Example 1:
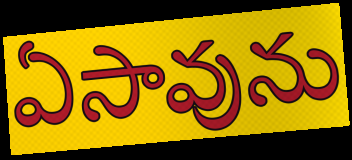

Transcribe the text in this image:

ఏసావును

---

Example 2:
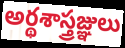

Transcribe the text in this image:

అర్థశాస్త్రజ్ఞులు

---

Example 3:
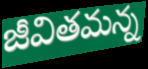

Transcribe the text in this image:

జీవితమన్న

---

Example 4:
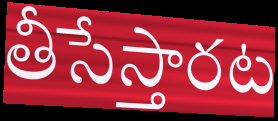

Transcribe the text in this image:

తీసేస్తారట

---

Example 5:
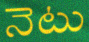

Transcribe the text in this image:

నెటు